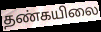
தண்கயிலை